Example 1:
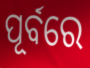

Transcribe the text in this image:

ପୂର୍ବରେ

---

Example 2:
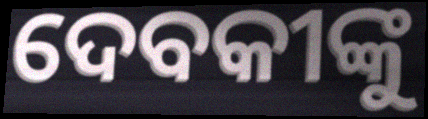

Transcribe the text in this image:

ଦେବକୀଙ୍କୁ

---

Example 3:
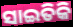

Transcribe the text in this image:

ସାଇତିକି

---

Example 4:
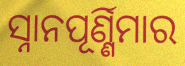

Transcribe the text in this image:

ସ୍ନାନପୂର୍ଣ୍ଣିମାର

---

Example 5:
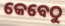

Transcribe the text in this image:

କେବେଠୁ